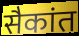
सैकांत